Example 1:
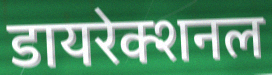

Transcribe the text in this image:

डायरेक्शनल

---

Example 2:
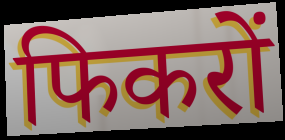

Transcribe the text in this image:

फिकरों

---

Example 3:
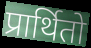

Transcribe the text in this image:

प्रार्थितो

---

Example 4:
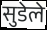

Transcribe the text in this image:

सुडेले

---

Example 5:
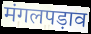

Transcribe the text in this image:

मंगलपड़ाव